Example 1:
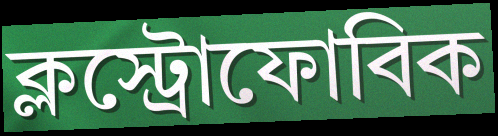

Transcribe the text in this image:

ক্লস্ট্রোফোবিক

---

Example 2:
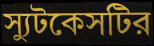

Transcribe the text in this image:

স্যুটকেসটির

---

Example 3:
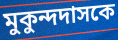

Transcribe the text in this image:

মুকুন্দদাসকে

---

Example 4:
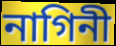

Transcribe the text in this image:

নাগিনী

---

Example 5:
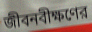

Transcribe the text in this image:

জীবনবীক্ষণের